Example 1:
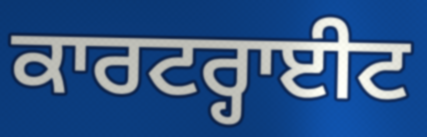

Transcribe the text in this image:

ਕਾਰਟਰ੍ਹਾਈਟ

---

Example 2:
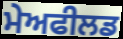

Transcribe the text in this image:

ਮੇਅਫੀਲਡ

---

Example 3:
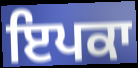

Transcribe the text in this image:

ਇਪਕਾ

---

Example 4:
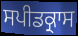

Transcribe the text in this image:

ਸਪੀਡਕ੍ਰਾਸ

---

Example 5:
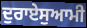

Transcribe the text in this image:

ਦੁਰਾਏਸੁਆਮੀ